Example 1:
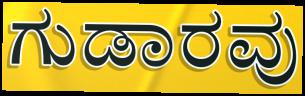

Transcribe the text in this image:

ಗುಡಾರವು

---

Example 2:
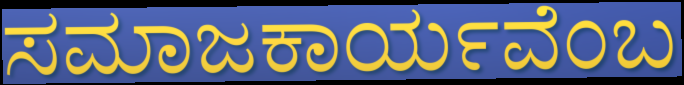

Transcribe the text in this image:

ಸಮಾಜಕಾರ್ಯವೆಂಬ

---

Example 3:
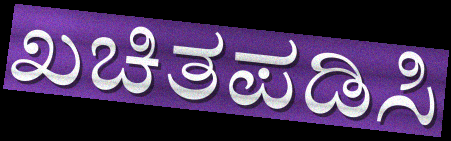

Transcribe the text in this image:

ಖಚಿತಪಡಿಸಿ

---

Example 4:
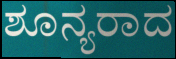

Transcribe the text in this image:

ಶೂನ್ಯರಾದ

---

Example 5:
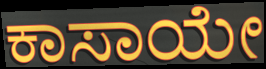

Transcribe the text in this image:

ಕಾಸಾಯೇ